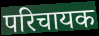
परिचायक